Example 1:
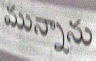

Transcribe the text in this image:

మున్నాను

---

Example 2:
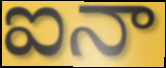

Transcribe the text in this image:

ఐనా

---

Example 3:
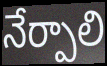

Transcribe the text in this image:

నేర్పాలి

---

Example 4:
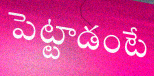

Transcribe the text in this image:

పెట్టాడంటే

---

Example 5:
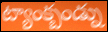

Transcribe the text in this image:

ట్యాంక్బండ్ను